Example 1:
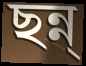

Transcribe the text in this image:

ছন্ন্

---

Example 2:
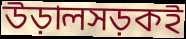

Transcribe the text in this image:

উড়ালসড়কই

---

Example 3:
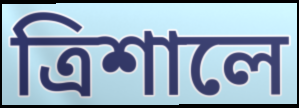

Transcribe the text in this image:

ত্রিশালে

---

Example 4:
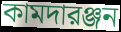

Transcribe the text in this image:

কামদারঞ্জন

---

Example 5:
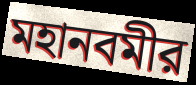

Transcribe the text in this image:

মহানবমীর